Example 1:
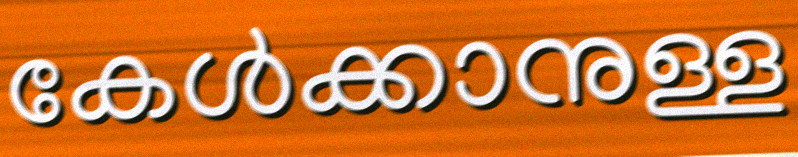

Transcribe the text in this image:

കേൾക്കാനുള്ള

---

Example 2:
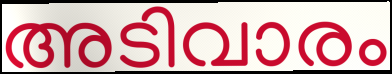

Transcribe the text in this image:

അടിവാരം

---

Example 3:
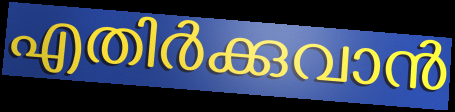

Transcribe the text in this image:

എതിർക്കുവാൻ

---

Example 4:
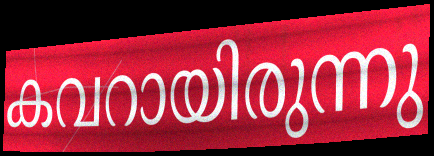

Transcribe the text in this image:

കവറായിരുന്നു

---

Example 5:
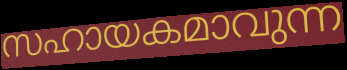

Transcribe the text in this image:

സഹായകമാവുന്ന